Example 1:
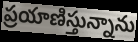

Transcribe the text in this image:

ప్రయాణిస్తున్నాను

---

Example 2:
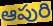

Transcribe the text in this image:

ఆపురి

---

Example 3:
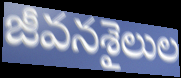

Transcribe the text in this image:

జీవనశైలుల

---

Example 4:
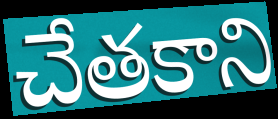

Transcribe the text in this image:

చేతకాని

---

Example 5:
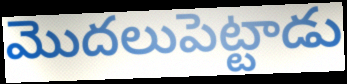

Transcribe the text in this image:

మొదలుపెట్టాడు